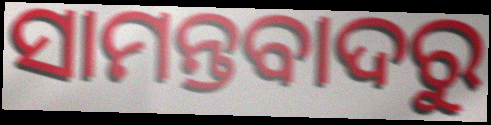
ସାମନ୍ତବାଦରୁ